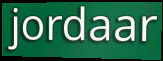
jordaar